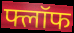
फ्लॉफ